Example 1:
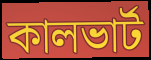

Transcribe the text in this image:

কালভার্ট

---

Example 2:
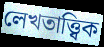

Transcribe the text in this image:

লেখতাত্ত্বিক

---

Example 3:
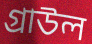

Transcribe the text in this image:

গ্রাউল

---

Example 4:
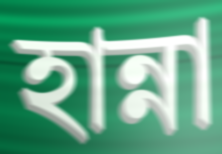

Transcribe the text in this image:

হান্না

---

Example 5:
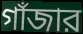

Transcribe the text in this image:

গাঁজার